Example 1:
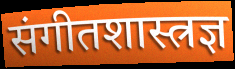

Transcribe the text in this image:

संगीतशास्त्रज्ञ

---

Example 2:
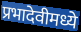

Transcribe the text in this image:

प्रभादेवीमध्ये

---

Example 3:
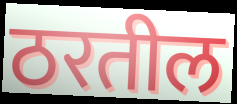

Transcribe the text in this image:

ठरतील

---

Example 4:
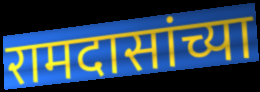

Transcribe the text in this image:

रामदासांच्या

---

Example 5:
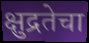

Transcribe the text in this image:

क्षुद्रतेचा